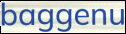
baggenu